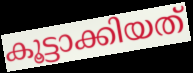
കൂട്ടാക്കിയത്